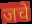
जचे